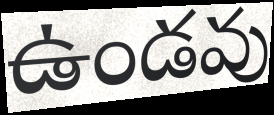
ఉండవు